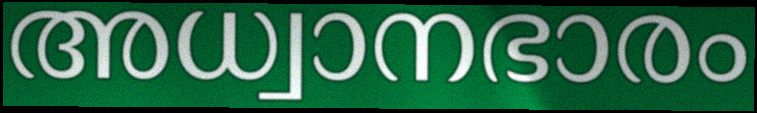
അധ്വാനഭാരം